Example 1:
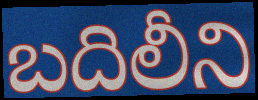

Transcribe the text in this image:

బదిలీని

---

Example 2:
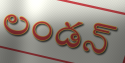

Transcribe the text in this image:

లండన్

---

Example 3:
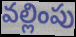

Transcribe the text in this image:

వల్లింపు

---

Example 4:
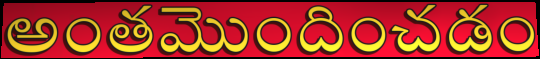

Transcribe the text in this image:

అంతమొందించడం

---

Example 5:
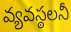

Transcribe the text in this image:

వ్యవస్ఠలనీ